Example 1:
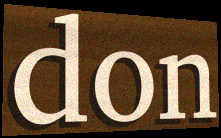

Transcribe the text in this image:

don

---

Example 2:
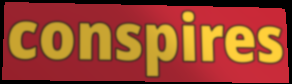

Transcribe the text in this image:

conspires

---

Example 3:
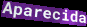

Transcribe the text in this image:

Aparecida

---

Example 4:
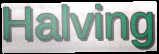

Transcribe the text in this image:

Halving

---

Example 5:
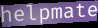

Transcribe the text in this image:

helpmate